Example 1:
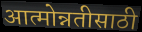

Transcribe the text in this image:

आत्मोन्नतीसाठी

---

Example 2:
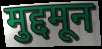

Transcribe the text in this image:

मुद्दमून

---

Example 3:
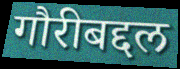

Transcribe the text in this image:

गौरीबद्दल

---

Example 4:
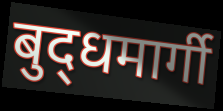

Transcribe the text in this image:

बुद्धमार्गी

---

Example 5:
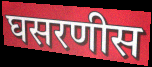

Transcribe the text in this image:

घसरणीस